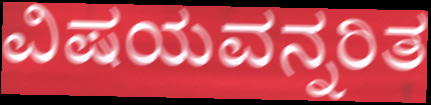
ವಿಷಯವನ್ನರಿತ